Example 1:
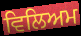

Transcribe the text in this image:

ਵਿਲਿਅਮ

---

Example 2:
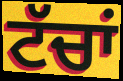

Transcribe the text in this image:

ਟੱਚਾਂ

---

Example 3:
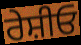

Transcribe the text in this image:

ਰੇਸ਼ੀਓ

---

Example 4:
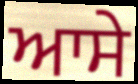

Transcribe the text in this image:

ਆਸੇ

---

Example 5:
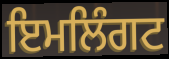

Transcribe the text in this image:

ਇਮਲਿੰਗਟ